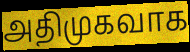
அதிமுகவாக